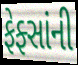
ફેફ્સાંની